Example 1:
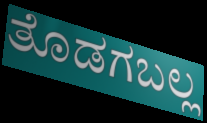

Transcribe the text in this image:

ತೊಡಗಬಲ್ಲ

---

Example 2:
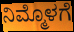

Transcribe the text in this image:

ನಿಮ್ಮೊಳಗೆ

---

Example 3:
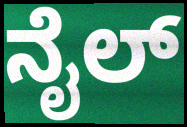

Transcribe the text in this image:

ನೈಲ್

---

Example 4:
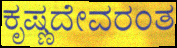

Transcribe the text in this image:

ಕೃಷ್ಣದೇವರಂತ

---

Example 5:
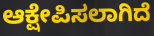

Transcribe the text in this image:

ಆಕ್ಷೇಪಿಸಲಾಗಿದೆ